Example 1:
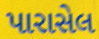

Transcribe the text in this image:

પારાસેલ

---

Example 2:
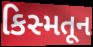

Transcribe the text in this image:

કિસ્મતૂન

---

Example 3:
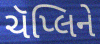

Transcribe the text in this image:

ચૅપ્લિને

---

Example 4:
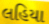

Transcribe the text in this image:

લહિયા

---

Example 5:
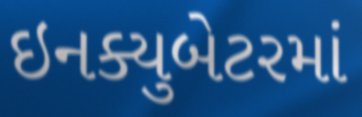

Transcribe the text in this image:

ઇનક્યુબેટરમાં